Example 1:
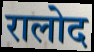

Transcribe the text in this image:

रालोद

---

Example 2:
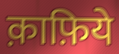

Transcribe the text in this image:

क़ाफ़िये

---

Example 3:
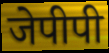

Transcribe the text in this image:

जेपीपी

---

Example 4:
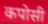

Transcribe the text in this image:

कपोसी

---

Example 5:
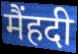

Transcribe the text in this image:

मैंहदी